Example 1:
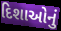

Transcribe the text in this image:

દિશાઓનું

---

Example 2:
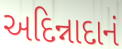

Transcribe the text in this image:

અદિન્નાદાનં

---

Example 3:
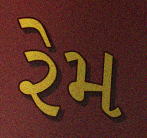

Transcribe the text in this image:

રેમ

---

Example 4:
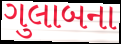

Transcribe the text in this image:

ગુલાબના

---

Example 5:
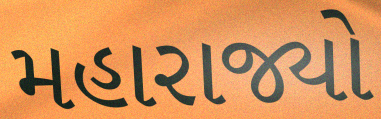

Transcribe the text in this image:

મહારાજ્યો